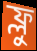
ফ্লু